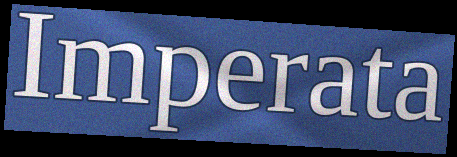
Imperata